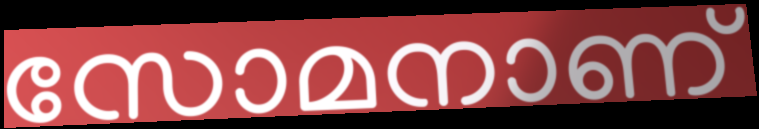
സോമനാണ്